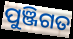
ପୁଞ୍ଜିଗତ